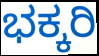
ಭಕ್ಕರಿ